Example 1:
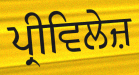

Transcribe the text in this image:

ਪ੍ਰੀਵਿਲੇਜ਼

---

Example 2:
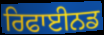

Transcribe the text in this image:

ਰਿਫਾਈਨਡ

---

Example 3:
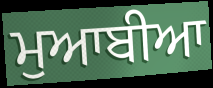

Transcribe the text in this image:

ਮੁਆਬੀਆ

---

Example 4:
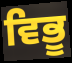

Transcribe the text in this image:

ਵਿਭੂ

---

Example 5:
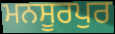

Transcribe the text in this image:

ਮਨਸੂਰਪੁਰ